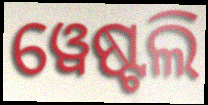
ୱେଷ୍ଟଲି